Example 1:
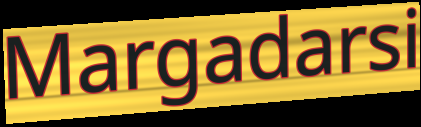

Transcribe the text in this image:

Margadarsi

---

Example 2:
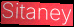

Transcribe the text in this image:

Sitaney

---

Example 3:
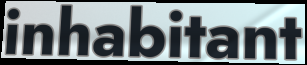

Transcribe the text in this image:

inhabitant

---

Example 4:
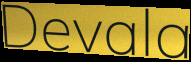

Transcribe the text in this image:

Devala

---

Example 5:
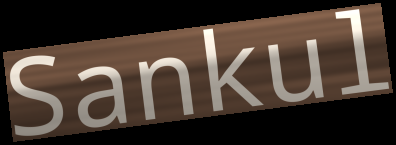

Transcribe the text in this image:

Sankul